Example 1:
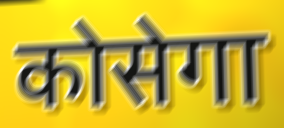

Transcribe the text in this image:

कोसेगा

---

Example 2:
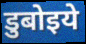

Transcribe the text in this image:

डुबोइये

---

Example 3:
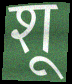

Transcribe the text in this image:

शू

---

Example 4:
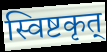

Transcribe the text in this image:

स्विष्टकृत्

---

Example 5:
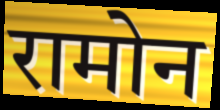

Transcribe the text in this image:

रामोन